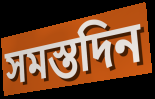
সমস্তদিন